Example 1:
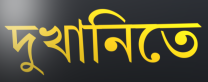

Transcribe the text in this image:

দুখানিতে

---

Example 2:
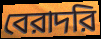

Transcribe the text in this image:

বেরাদরি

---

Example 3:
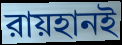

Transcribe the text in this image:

রায়হানই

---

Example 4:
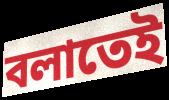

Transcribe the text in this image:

বলাতেই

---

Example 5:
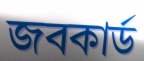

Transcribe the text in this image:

জবকার্ড